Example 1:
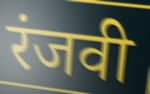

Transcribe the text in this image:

रंजवी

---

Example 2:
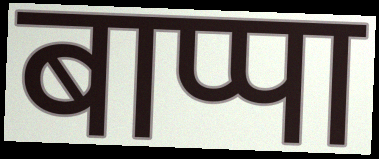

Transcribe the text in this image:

बाप्पा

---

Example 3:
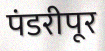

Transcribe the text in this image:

पंडरीपूर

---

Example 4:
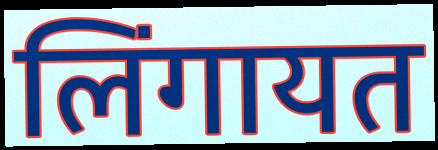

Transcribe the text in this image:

लिंगायत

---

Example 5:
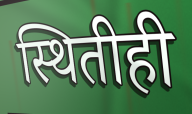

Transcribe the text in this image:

स्थितीही